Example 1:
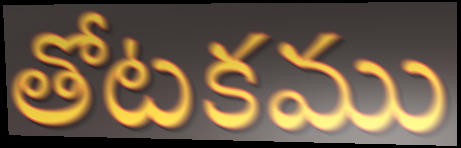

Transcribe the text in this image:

తోటకము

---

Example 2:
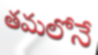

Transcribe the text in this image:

తమలోనే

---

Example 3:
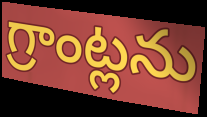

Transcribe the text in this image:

గ్రాంట్లను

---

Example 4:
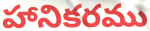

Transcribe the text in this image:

హానికరము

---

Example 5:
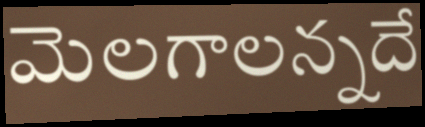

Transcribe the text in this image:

మెలగాలన్నదే